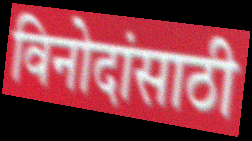
विनोदांसाठी